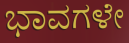
ಭಾವಗಳೇ